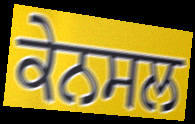
ਕੇਨਸਲ